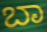
ಬಾ